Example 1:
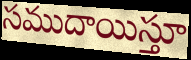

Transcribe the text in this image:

సముదాయిస్తూ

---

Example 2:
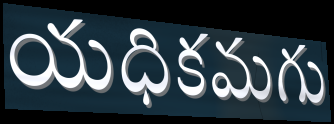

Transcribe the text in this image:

యధికమగు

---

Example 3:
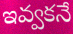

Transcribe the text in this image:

ఇవ్వకనే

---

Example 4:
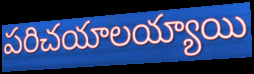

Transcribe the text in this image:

పరిచయాలయ్యాయి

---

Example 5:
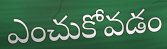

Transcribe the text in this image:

ఎంచుకోవడం